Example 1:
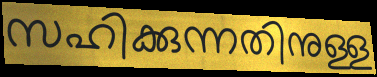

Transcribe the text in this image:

സഹിക്കുന്നതിനുള്ള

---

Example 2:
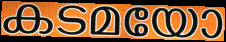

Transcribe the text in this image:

കടമയോ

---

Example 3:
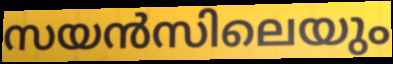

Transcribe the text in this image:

സയൻസിലെയും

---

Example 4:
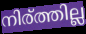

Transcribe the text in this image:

നിര്ത്തില്ല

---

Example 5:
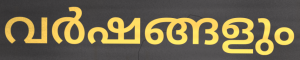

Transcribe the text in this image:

വർഷങ്ങളും